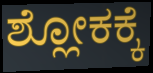
ಶ್ಲೋಕಕ್ಕೆ